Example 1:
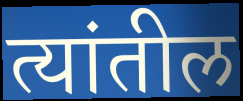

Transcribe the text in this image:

त्‍यांतील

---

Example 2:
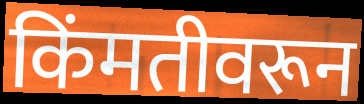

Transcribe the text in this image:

किंमतीवरून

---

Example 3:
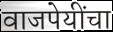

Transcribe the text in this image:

वाजपेयींचा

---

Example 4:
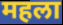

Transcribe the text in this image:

महला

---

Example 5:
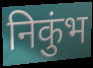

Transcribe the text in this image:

निकुंभ